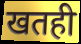
खतही